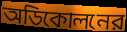
অডিকোলনের